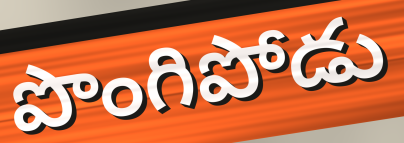
పొంగిపోడు